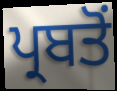
ਪ੍ਰਬਤੋਂ